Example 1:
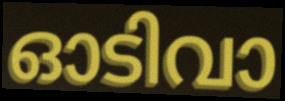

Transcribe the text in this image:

ഓടിവാ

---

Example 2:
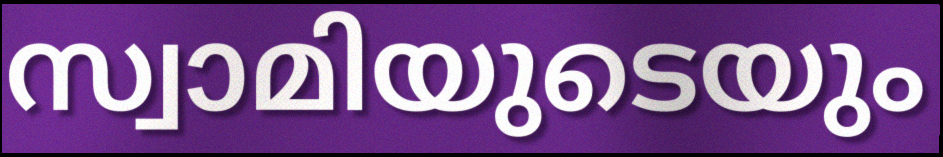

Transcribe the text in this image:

സ്വാമിയുടെയും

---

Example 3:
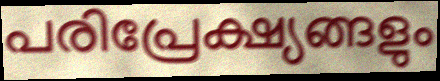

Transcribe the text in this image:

പരിപ്രേക്ഷ്യങ്ങളും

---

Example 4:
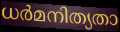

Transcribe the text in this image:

ധർമനിത്യതാ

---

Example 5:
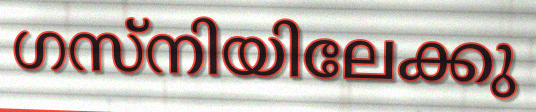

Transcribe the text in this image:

ഗസ്നിയിലേക്കു